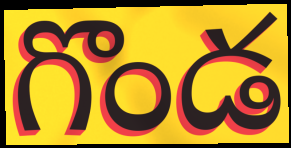
గొండ